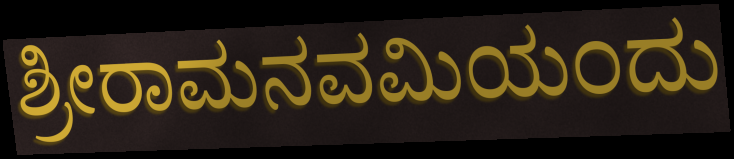
ಶ್ರೀರಾಮನವಮಿಯಂದು